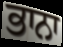
ਭਾਨਾ